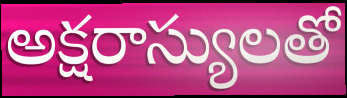
అక్షరాస్యులతో